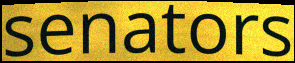
senators